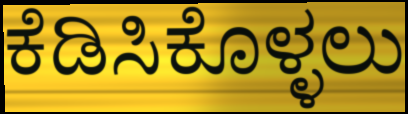
ಕೆಡಿಸಿಕೊಳ್ಳಲು